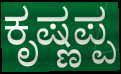
ಕೃಷ್ಣಪ್ಪ